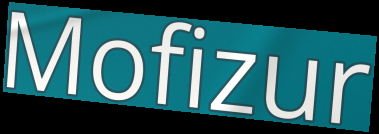
Mofizur